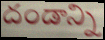
దండాన్ని